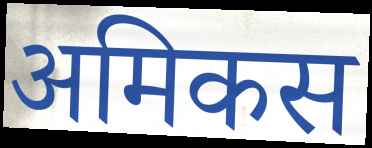
अमिकस